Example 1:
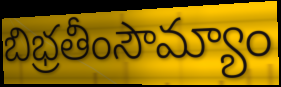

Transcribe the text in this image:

బిభ్రతీంసౌమ్యాం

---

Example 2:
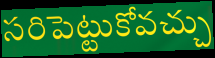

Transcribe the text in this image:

సరిపెట్టుకోవచ్చు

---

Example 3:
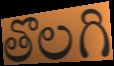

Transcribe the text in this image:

తొలగి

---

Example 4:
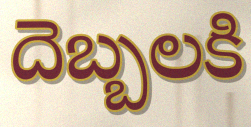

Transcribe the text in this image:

దెబ్బలకి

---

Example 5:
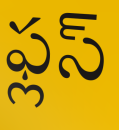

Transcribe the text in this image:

ఫ్లస్